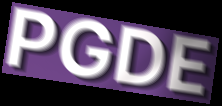
PGDE